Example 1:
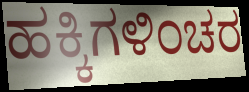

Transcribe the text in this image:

ಹಕ್ಕಿಗಳಿಂಚರ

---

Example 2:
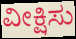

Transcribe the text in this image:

ವೀಕ್ಷಿಸು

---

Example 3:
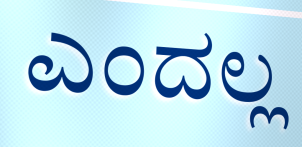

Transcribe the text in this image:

ಎಂದಲ್ಲ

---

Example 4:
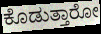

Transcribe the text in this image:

ಕೊಡುತ್ತಾರೋ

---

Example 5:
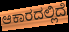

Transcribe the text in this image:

ಆಕಾರದಲ್ಲಿದೆ